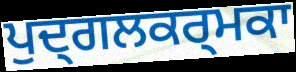
ਪੁਦ੍ਗਲਕਰ੍ਮਕਾ